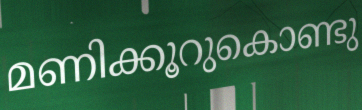
മണിക്കൂറുകൊണ്ടു